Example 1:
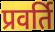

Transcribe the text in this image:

प्रवर्ति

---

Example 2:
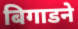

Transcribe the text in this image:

बिगाडने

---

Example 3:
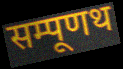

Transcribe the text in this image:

सम्पूणथ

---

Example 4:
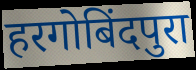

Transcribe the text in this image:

हरगोबिंदपुरा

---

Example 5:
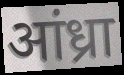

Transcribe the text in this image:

आंध्रा